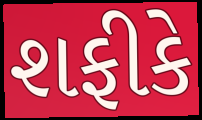
શફીકે